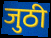
जुठी